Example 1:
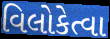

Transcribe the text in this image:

વિલોકેત્વા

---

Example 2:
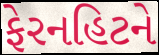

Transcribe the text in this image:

ફેરનહિટને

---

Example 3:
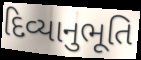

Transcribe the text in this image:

દિવ્યાનુભૂતિ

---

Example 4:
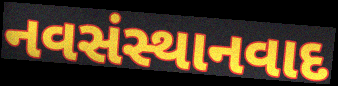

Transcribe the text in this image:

નવસંસ્થાનવાદ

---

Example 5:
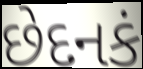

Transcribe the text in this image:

છેદનકં